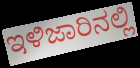
ಇಳಿಜಾರಿನಲ್ಲಿ